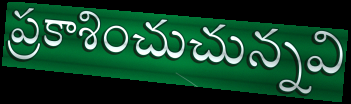
ప్రకాశించుచున్నవి